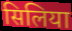
सिलिया